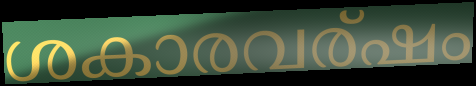
ശകാരവര്ഷം